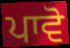
ਪਾਵੋ